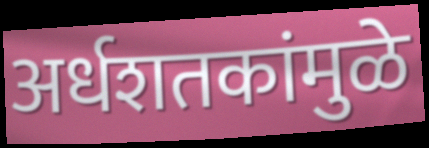
अर्धशतकांमुळे